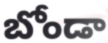
బోండా